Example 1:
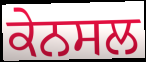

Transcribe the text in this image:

ਕੇਨਸਲ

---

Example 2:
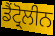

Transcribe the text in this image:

ਡੈਂਟ੍ਰੋਲੀਨ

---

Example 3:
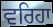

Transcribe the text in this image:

ਵਰਿਹਾ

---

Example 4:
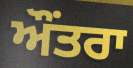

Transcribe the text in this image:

ਔਂਤਰਾ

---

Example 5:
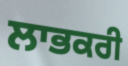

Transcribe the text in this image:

ਲਾਭਕਰੀ